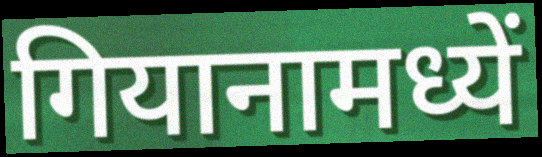
गियानामध्यें